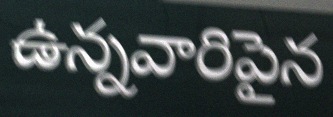
ఉన్నవారిపైన